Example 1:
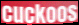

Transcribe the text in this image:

cuckoos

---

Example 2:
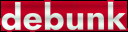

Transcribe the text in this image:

debunk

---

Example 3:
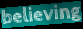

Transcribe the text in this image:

believing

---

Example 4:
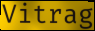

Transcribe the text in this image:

Vitrag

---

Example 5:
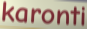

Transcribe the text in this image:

karonti